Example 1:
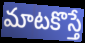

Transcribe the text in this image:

మాటకొస్తే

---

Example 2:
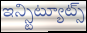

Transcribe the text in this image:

ఇన్స్టిట్యూట్స్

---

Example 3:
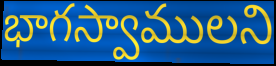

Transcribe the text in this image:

భాగస్వాములని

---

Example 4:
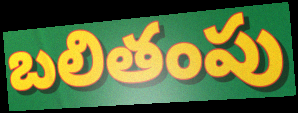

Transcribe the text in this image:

బలితంపు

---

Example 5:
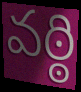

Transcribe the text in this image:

వఠ్ఠి